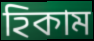
হিকাম